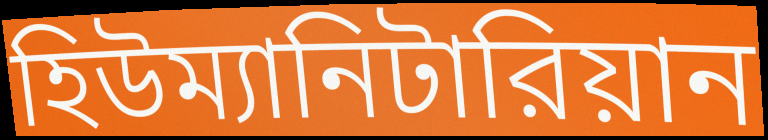
হিউম্যানিটারিয়ান